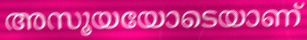
അസൂയയോടെയാണ്